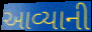
આવ્યાની